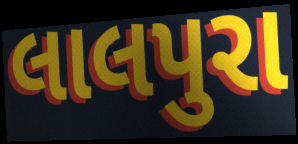
લાલપુરા